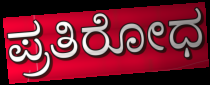
ಪ್ರತಿರೋಧ